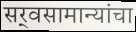
सर्वसामान्यांचा